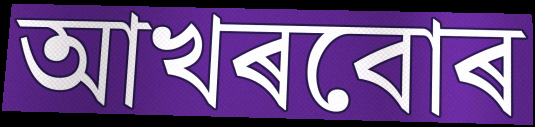
আখৰবোৰ